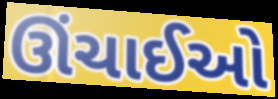
ઊંચાઈઓ